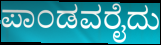
ಪಾಂಡವರೈದು